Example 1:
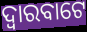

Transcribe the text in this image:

ଦ୍ୱାରବାଟେ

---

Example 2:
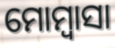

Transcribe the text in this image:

ମୋମ୍ବାସା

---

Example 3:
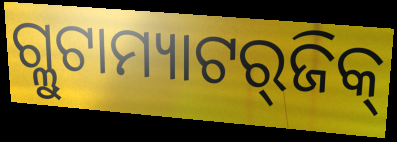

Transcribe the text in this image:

ଗ୍ଲୁଟାମ୍ୟାଟର୍‌ଜିକ୍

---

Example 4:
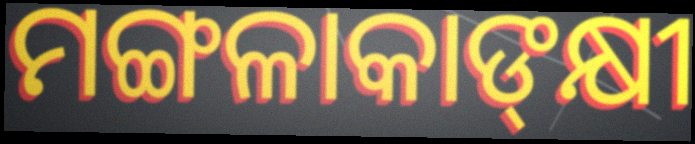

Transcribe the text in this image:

ମଙ୍ଗଳାକାଙ୍‍କ୍ଷୀ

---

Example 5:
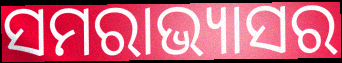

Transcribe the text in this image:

ସମରାଭ୍ୟାସର